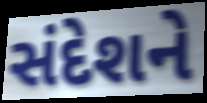
સંદેશને